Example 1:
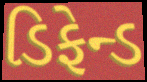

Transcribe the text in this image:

ડિફેન્ડ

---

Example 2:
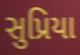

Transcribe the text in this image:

સુપ્રિયા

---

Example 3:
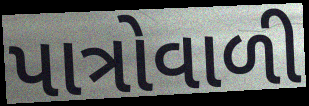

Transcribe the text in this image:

પાત્રોવાળી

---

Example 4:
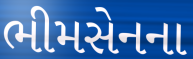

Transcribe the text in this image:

ભીમસેનના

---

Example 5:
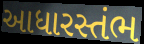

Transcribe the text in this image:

આધારસ્તંભ